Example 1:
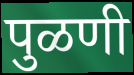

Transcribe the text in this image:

पुळणी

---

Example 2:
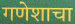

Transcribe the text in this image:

गणेशाचा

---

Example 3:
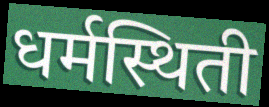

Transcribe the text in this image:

धर्मस्थिती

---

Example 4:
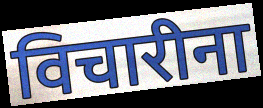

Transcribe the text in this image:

विचारीना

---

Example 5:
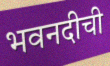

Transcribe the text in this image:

भवनदीची